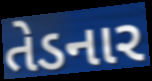
તેડનાર